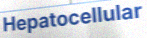
Hepatocellular